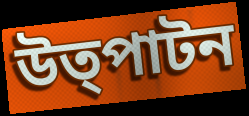
উত্পাটন